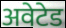
अवेटेड